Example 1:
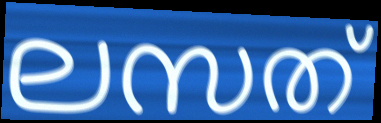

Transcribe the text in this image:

ലസത്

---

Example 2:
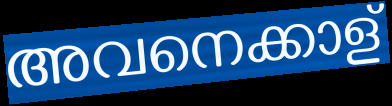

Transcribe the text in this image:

അവനെക്കാള്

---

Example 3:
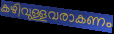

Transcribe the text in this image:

കഴിവുള്ളവരാകണം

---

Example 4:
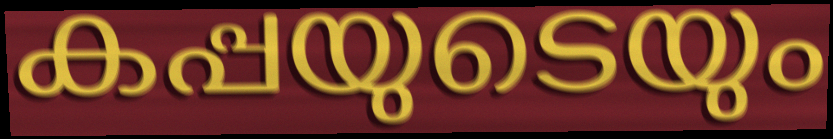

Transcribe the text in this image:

കപ്പയുടെയും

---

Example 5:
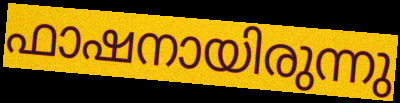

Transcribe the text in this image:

ഫാഷനായിരുന്നു